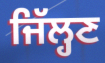
ਜਿੱਲ੍ਹਣ